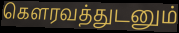
கௌரவத்துடனும்